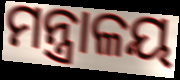
ମନ୍ତ୍ରାଳୟ